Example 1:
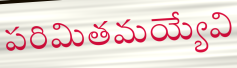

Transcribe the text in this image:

పరిమితమయ్యేవి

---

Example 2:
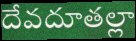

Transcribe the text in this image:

దేవదూతల్లా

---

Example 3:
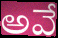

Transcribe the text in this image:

అవే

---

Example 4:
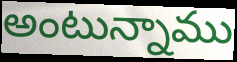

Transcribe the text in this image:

అంటున్నాము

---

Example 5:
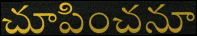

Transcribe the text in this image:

చూపించనూ